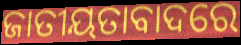
ଜାତୀୟତାବାଦରେ